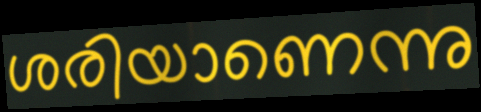
ശരിയാണെന്നു